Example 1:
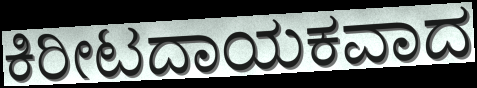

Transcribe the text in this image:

ಕಿರೀಟದಾಯಕವಾದ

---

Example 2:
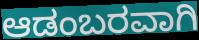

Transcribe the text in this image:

ಆಡಂಬರವಾಗಿ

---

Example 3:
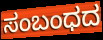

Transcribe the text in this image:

ಸಂಬಂಧದ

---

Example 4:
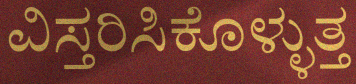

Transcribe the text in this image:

ವಿಸ್ತರಿಸಿಕೊಳ್ಳುತ್ತ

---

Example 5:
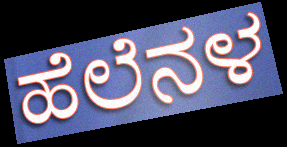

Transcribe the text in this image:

ಹೆಲೆನಳ